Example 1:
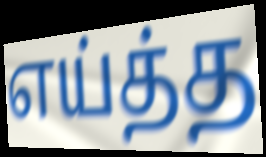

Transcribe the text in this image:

எய்த்த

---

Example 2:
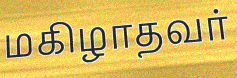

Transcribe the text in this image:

மகிழாதவர்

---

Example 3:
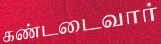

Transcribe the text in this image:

கண்டடைவார்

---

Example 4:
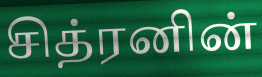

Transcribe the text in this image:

சித்ரனின்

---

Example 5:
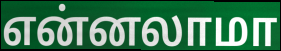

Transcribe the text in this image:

என்னலாமா